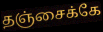
தஞ்சைக்கே